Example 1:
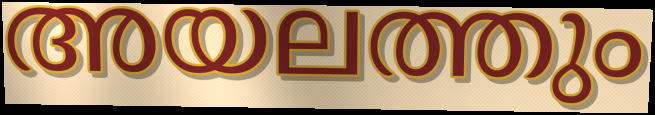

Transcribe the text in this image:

അയലത്തും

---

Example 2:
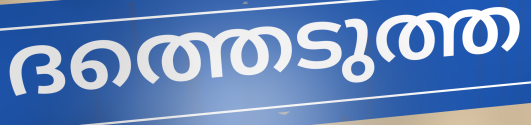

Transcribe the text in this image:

ദത്തെടുത്ത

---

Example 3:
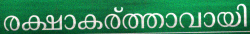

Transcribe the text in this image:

രക്ഷാകര്ത്താവായി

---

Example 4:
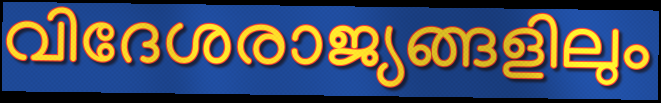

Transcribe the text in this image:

വിദേശരാജ്യങ്ങളിലും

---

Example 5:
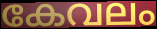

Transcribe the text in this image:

കേവലം